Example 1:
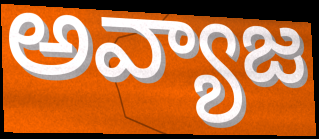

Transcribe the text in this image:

అవ్యాజ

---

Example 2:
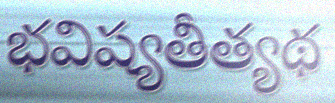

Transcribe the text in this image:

భవిష్యతీత్యథ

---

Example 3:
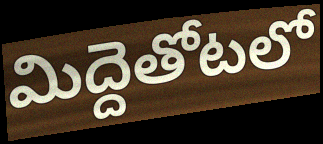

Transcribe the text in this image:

మిద్దెతోటలో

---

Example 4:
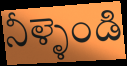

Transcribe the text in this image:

నీళ్ళెండి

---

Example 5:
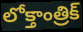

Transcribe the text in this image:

లోక్తాంత్రిక్